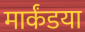
मार्कंडया